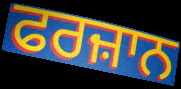
ਫਰਜ਼ਾਨ